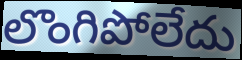
లొంగిపోలేదు